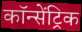
कॉन्सेंट्रिक